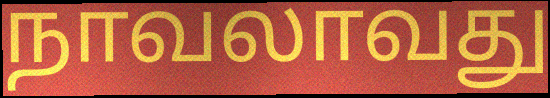
நாவலாவது